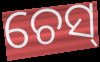
ଚେସ୍